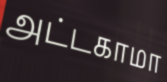
அட்டகாமா